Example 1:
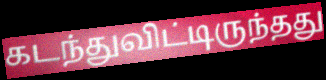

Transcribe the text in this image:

கடந்துவிட்டிருந்தது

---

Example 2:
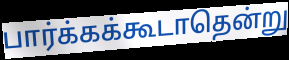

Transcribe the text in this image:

பார்க்கக்கூடாதென்று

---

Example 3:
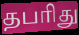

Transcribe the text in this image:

தபரிது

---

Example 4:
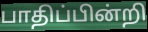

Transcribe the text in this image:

பாதிப்பின்றி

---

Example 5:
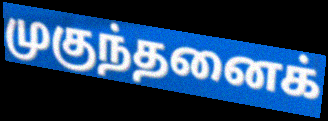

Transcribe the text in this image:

முகுந்தனைக்